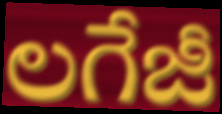
లగేజీ